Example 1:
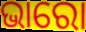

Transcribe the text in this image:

ଭାରୋ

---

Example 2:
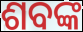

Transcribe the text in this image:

ଶବଙ୍କ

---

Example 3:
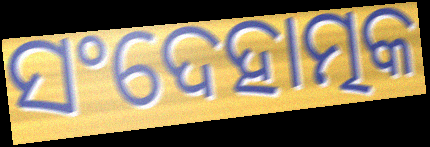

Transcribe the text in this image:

ସଂଦେହାତ୍ମକ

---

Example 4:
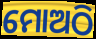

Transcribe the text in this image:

ମୋଅଠି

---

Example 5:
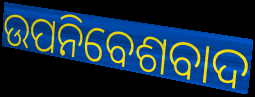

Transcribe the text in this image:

ଉପନିବେଶବାଦ